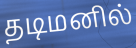
தடிமனில்